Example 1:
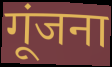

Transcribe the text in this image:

गूंजना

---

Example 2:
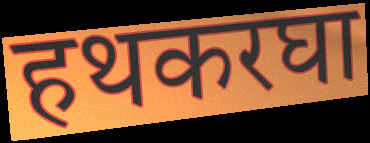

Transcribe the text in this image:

हथकरघा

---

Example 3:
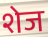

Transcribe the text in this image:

शेज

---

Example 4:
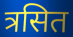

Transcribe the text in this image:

त्रसित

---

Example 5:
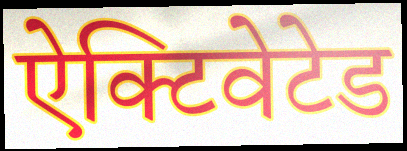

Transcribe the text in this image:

ऐक्टिवेटेड